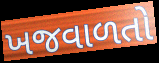
ખજવાળતો